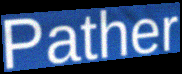
Pather